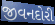
જીવનદોરી